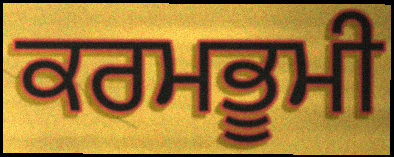
ਕਰਮਭੂਮੀ